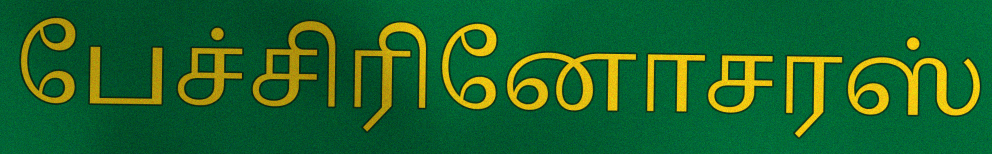
பேச்சிரினோசரஸ்